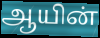
ஆயின்